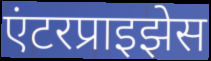
एंटरप्राइझेस